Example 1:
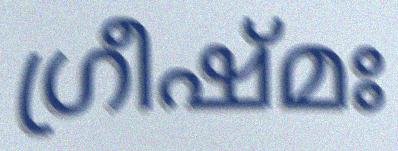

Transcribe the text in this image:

ഗ്രീഷ്മഃ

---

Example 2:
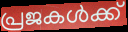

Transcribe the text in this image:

പ്രജകൾക്ക്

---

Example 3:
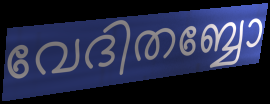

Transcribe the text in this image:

വേദിതബ്ബോ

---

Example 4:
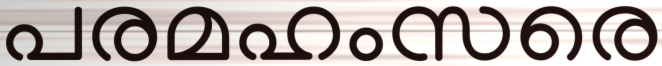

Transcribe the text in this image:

പരമഹംസരെ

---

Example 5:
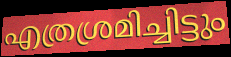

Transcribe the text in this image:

എത്രശ്രമിച്ചിട്ടും